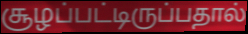
சூழப்பட்டிருப்பதால்